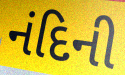
નંદિની